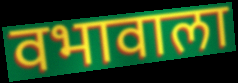
वभावाला